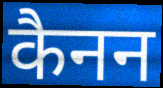
कैनन